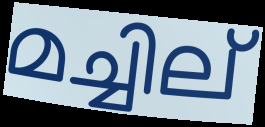
മച്ചില്